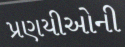
પ્રણયીઓની